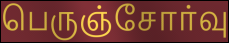
பெருஞ்சோர்வு